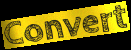
Convert